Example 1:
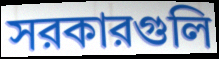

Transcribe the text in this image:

সরকারগুলি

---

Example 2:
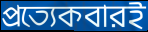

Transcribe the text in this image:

প্রত্যেকবারই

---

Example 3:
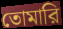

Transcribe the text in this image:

তোমারি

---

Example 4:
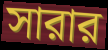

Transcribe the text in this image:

সারার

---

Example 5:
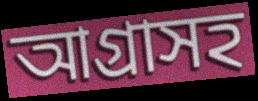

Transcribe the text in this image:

আগ্রাসহ